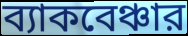
ব্যাকবেঞ্চার